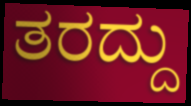
ತರದ್ದು